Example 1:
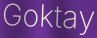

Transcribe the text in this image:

Goktay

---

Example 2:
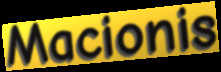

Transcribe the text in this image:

Macionis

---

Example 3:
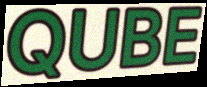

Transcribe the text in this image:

QUBE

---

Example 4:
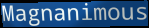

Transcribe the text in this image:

Magnanimous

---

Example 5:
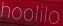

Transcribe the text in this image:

hoolilo